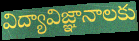
విద్యావిజ్ఞానాలకు